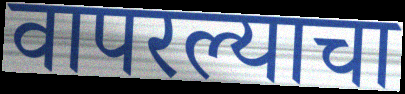
वापरल्याचा